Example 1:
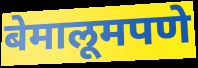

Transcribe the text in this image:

बेमालूमपणे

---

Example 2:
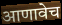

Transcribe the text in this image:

आणावेच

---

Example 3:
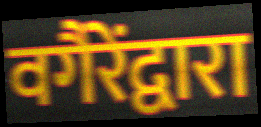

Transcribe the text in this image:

वगैरेंद्वारा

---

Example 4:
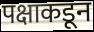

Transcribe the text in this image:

पक्षाकडून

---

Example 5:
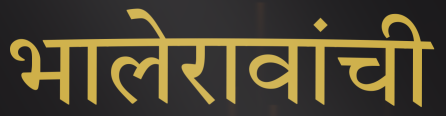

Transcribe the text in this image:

भालेरावांची